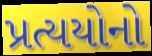
પ્રત્યયોનો